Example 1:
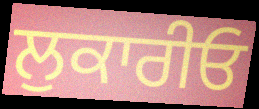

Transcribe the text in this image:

ਲੁਕਾਰੀਓ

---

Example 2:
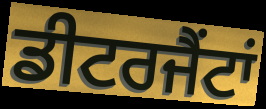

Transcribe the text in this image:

ਡੀਟਰਜੈਂਟਾਂ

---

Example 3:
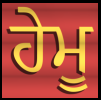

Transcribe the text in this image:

ਹੇਮੂ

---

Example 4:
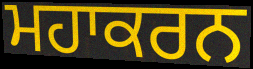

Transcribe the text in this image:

ਮਹਾਕਰਨ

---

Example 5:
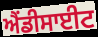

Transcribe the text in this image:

ਐਂਡੀਸਾਈਟ